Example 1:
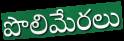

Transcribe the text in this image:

పొలిమేరలు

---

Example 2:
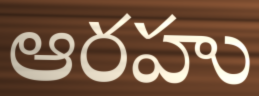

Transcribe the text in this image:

ఆరహు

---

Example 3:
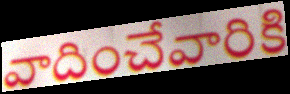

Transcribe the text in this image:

వాదించేవారికి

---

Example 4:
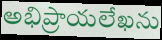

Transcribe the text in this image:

అభిప్రాయలేఖను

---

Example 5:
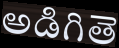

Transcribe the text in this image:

అడిగితె